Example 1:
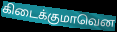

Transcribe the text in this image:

கிடைக்குமாவென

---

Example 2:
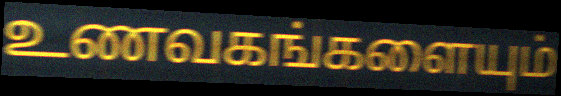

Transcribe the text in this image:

உணவகங்களையும்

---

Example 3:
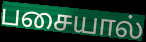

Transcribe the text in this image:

பசையால்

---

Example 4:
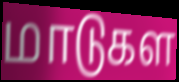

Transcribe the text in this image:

மாடுகள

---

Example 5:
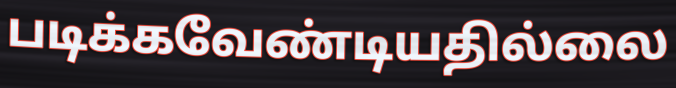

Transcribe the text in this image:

படிக்கவேண்டியதில்லை